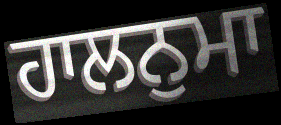
ਹਾਲਨੁਮਾ